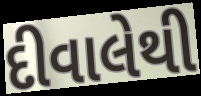
દીવાલેથી